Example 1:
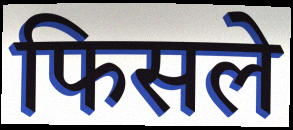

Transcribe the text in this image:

फिसले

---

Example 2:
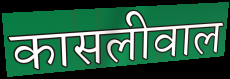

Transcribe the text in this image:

कासलीवाल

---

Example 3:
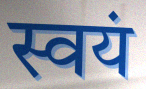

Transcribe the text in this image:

स्वयं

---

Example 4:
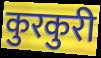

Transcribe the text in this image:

कुरकुरी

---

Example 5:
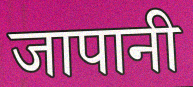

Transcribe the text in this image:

जापानी